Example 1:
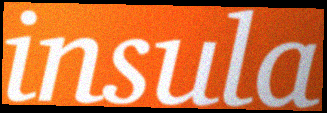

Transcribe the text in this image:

insula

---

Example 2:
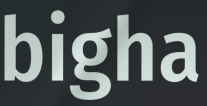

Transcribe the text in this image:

bigha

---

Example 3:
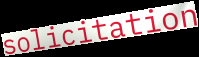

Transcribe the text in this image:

solicitation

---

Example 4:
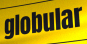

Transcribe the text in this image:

globular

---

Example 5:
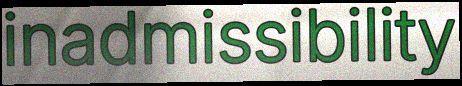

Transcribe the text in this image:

inadmissibility